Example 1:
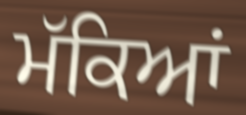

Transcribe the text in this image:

ਮੱਕਿਆਂ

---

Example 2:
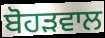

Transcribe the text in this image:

ਬੋਹੜਵਾਲ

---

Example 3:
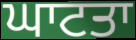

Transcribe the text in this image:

ਘਾਟਤਾ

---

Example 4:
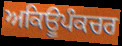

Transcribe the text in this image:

ਅਕਿਊਪੰਕਚਰ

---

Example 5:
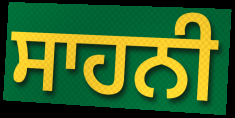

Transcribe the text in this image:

ਸਾਹਨੀ